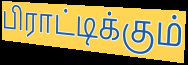
பிராட்டிக்கும்